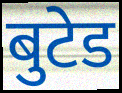
बुटेड